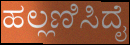
ಹಲ್ಲಣಿಸಿದೈ